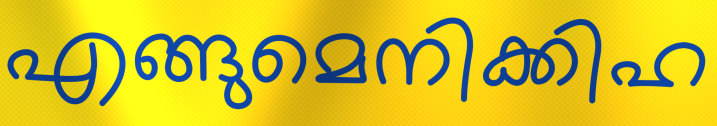
എങ്ങുമെനിക്കിഹ